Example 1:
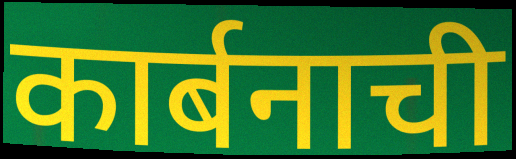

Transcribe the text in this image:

कार्बनाची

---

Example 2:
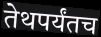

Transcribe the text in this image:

तेथपर्यंतच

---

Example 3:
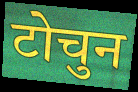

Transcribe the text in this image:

टोचुन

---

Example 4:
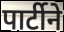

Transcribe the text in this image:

पार्टीने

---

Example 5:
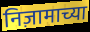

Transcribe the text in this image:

निज़ामाच्या